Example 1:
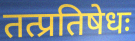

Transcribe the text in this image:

तत्प्रतिषेधः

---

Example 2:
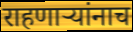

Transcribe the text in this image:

राहणाऱ्यांनाच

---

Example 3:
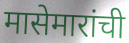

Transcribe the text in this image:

मासेमारांची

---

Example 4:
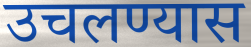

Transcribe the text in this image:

उचलण्यास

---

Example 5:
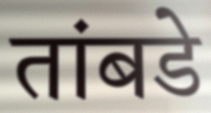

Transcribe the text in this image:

तांबडे